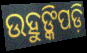
ଉହୁଙ୍କିପଡ଼ି